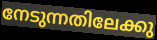
നേടുന്നതിലേക്കു